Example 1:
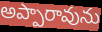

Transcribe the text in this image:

అప్పారావును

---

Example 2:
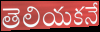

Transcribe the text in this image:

తెలియకనే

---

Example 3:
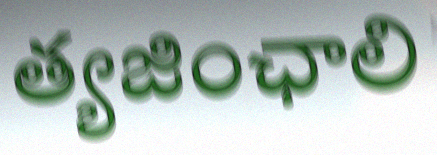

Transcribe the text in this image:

త్యజింఛాలి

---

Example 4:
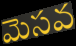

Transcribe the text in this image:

మెసవ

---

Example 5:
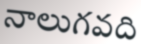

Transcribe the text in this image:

నాలుగవది